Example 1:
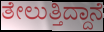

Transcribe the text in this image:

ತೇಲುತ್ತಿದ್ದಾನೆ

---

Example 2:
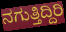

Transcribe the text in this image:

ನಗುತ್ತಿದ್ದಿರಿ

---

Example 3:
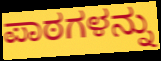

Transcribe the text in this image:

ಪಾಠಗಳನ್ನು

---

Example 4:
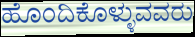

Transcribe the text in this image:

ಹೊಂದಿಕೊಳ್ಳುವವರು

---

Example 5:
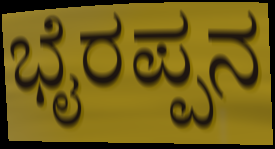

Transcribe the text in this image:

ಭೈರಪ್ಪನ